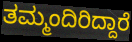
ತಮ್ಮಂದಿರಿದ್ದಾರೆ